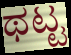
ಥಟ್ಟ